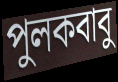
পুলকবাবু